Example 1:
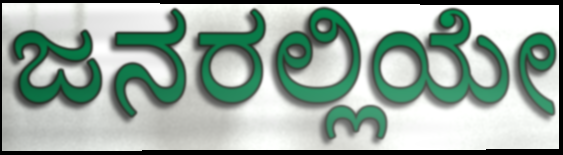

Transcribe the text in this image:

ಜನರಲ್ಲಿಯೇ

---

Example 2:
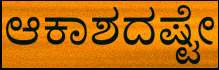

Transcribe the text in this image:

ಆಕಾಶದಷ್ಟೇ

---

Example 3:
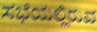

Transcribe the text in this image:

ಸಭೆಯಲ್ಲಿರುವ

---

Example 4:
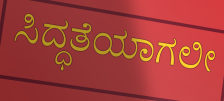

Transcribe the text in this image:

ಸಿದ್ಧತೆಯಾಗಲೀ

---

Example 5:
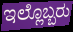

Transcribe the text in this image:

ಇಲ್ಲೊಬ್ಬರು